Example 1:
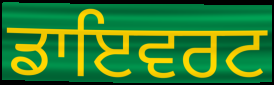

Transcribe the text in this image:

ਡਾਇਵਰਟ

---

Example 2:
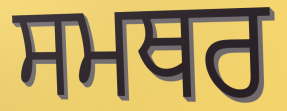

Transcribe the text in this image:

ਸਮਥਰ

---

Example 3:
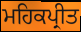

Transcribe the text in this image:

ਮਹਿਕਪ੍ਰੀਤ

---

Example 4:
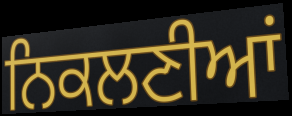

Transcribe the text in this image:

ਨਿਕਲਣੀਆਂ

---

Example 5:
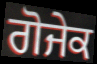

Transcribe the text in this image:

ਗੋਜੇਕ